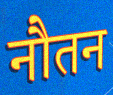
नौतन